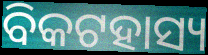
ବିକଟହାସ୍ୟ